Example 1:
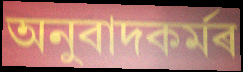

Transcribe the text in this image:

অনুবাদকৰ্মৰ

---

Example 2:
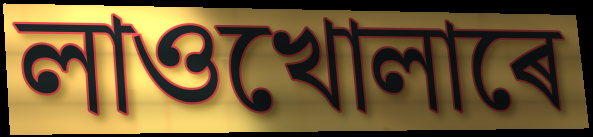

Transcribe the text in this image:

লাওখোলাৰে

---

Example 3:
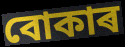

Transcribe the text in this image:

বোকাৰ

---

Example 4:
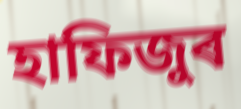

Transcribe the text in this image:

হাফিজুৰ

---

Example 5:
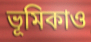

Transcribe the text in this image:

ভূমিকাও